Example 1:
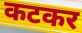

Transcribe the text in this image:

कटकर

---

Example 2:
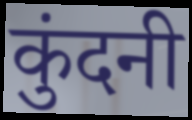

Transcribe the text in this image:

कुंदनी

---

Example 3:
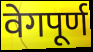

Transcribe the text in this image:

वेगपूर्ण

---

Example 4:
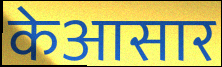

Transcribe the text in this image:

केआसार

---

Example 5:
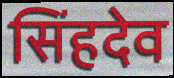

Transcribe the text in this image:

सिंहदेव